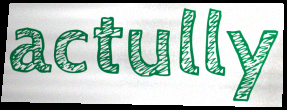
actully